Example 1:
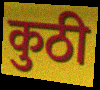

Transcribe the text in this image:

कुठी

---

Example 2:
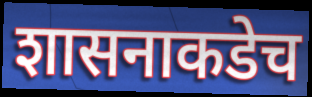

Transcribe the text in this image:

शासनाकडेच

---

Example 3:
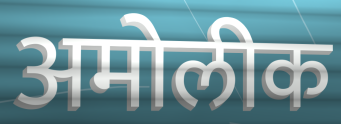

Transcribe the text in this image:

अमोलीक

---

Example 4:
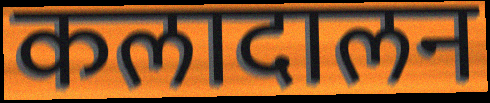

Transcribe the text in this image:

कलादालन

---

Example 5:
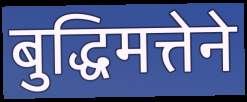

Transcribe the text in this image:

बुद्धिमत्तेने